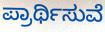
ಪ್ರಾರ್ಥಿಸುವೆ